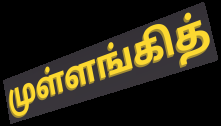
முள்ளங்கித்